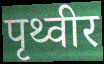
पृथ्वीर